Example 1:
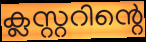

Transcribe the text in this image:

ക്ലസ്റ്ററിന്റെ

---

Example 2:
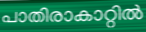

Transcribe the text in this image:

പാതിരാകാറ്റിൽ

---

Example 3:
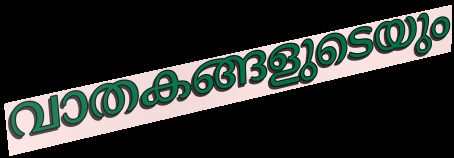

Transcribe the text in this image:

വാതകങ്ങളുടെയും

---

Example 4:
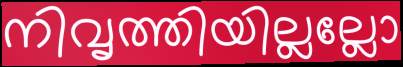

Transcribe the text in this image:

നിവൃത്തിയില്ലല്ലോ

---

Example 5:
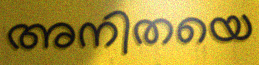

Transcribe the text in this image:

അനിതയെ